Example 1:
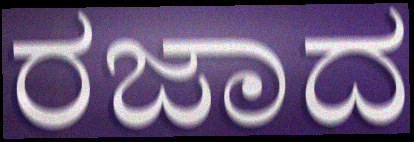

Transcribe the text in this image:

ರಜಾದ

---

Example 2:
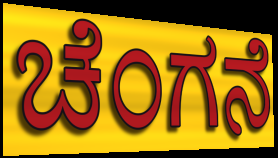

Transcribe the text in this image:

ಚೆಂಗನೆ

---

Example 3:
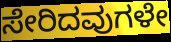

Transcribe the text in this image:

ಸೇರಿದವುಗಳೇ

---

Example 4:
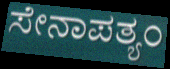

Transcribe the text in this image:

ಸೇನಾಪತ್ಯಂ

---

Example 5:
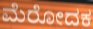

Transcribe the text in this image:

ಮೆರೋದಕ